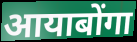
आयाबोंगा